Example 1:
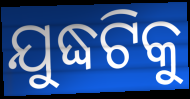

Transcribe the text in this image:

ଯୁଦ୍ଧଟିକୁ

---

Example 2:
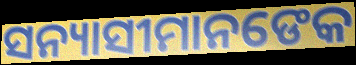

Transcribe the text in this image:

ସନ୍ୟାସୀମାନଙେକ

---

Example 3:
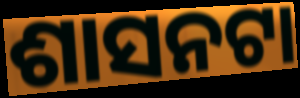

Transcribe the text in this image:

ଶାସନଟା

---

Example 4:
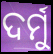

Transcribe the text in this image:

ଦର୍ମୁ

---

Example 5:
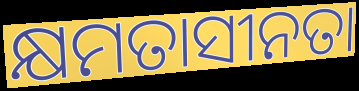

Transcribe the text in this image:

କ୍ଷମତାସୀନତା